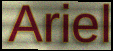
Ariel